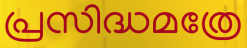
പ്രസിദ്ധമത്രേ